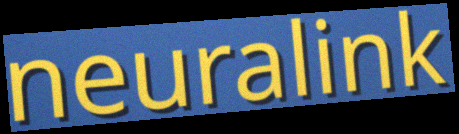
neuralink